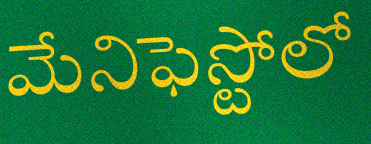
మేనిఫెస్టోలో